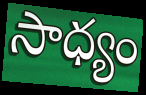
సాధ్యం